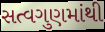
સત્વગુણમાંથી